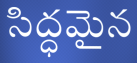
సిద్ధమైన